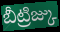
బీట్రిజ్కు